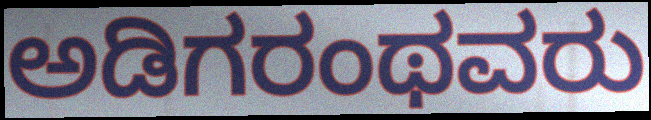
ಅಡಿಗರಂಥವರು